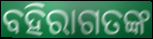
ବହିରାଗତଙ୍କ